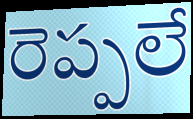
రెప్పలే